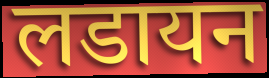
लडायन